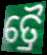
ତ୍ରୈ